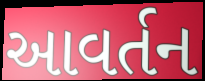
આવર્તન